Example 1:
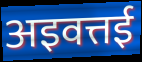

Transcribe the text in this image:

अइवत्तई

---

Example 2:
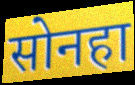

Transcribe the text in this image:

सोनहा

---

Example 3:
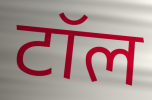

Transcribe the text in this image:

टॉल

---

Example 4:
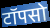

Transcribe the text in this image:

टॉपसो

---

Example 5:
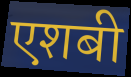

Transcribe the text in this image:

एशबी